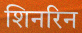
शिनरिन